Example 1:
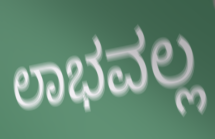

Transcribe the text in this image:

ಲಾಭವಲ್ಲ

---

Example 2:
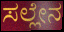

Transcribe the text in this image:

ಸಲ್ಲೇನ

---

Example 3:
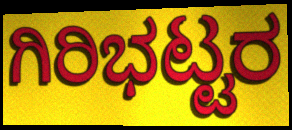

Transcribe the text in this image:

ಗಿರಿಭಟ್ಟರ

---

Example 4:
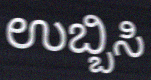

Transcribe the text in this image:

ಉಬ್ಬಿಸಿ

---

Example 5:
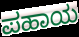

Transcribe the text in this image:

ಪಹಾಯ